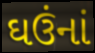
ઘઉંનાં